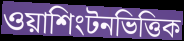
ওয়াশিংটনভিত্তিক